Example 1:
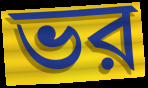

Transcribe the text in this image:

ভর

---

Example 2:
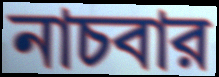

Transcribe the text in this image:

নাচবার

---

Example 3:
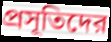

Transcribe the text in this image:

প্রসূতিদের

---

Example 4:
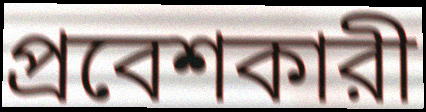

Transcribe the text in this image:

প্রবেশকারী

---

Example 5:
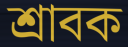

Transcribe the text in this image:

শ্রাবক